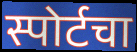
स्पोर्टचा